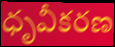
ధృవీకరణ